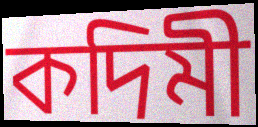
কদিমী